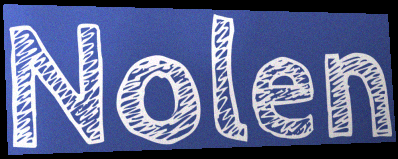
Nolen